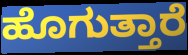
ಹೊಗುತ್ತಾರೆ